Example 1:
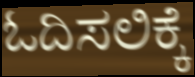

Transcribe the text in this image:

ಓದಿಸಲಿಕ್ಕೆ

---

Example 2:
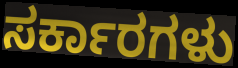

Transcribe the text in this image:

ಸರ್ಕಾರಗಳು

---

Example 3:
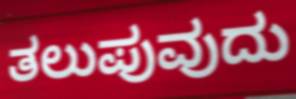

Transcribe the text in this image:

ತಲುಪುವುದು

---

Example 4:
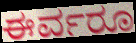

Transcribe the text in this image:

ಈರ್ವರೂ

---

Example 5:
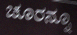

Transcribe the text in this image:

ಚೂರನ್ನೂ